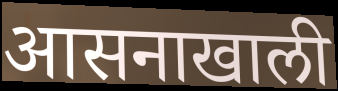
आसनाखाली